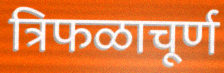
त्रिफळाचूर्ण